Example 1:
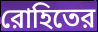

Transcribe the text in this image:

রোহিতের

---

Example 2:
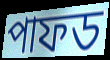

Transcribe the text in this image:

পাফড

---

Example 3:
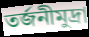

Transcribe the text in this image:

তর্জনীমুদ্রা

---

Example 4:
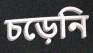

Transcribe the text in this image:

চড়েনি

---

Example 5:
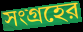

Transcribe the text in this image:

সংগ্রহের